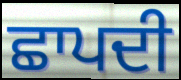
ਛਾਪਦੀ